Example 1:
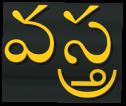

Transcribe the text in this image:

వస్త్ర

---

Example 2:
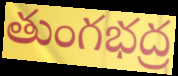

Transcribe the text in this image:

తుంగభద్ర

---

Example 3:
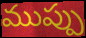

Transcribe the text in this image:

ముప్పు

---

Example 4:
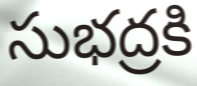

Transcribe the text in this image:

సుభద్రకి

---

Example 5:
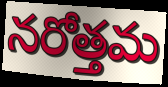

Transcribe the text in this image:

నరోత్తమ